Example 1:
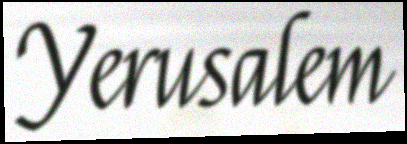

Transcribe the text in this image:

Yerusalem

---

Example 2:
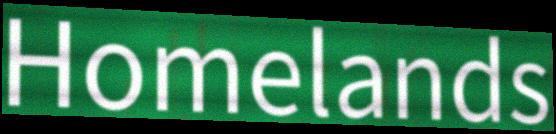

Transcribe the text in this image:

Homelands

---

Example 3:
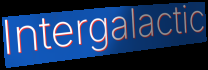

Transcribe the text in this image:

Intergalactic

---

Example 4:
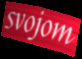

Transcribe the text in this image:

svojom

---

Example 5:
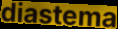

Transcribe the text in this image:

diastema